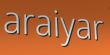
araiyar